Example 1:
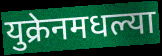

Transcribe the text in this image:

युक्रेनमधल्या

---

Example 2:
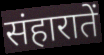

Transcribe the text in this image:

संहारातें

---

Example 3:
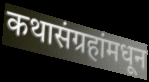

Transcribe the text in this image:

कथासंग्रहांमधून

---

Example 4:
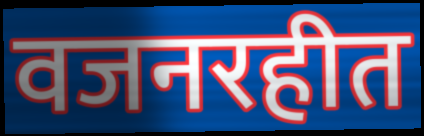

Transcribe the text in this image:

वजनरहीत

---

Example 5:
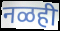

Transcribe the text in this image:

नळही